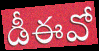
డీఈవో